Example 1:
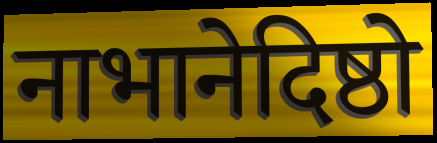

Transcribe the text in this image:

नाभानेदिष्ठो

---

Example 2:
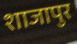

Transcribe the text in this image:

शाजापुर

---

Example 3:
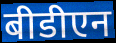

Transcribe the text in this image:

बीडीएन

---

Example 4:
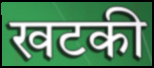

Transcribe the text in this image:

खटकी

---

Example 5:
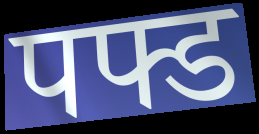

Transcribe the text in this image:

पफ्ड